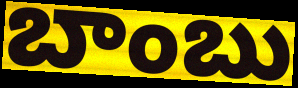
బాంబు